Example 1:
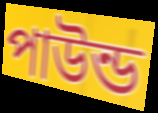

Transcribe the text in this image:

পাউন্ড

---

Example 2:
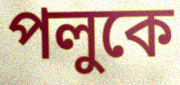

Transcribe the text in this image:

পলুকে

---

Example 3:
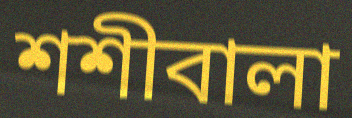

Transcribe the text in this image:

শশীবালা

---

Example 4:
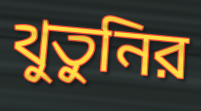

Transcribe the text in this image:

থুতুনির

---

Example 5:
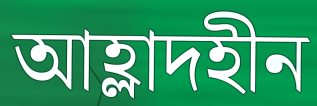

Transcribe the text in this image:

আহ্লাদহীন